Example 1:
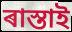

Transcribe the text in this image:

ৰাস্তাই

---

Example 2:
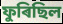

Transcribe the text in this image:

ফুৰিছিল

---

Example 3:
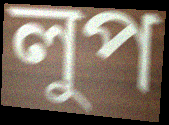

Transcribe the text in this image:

লুপ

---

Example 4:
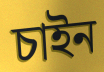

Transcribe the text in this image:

চাইন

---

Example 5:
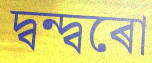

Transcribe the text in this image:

দ্বন্দ্বৰো